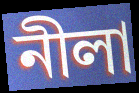
নীলা